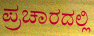
ಪ್ರಚಾರದಲ್ಲಿ